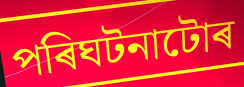
পৰিঘটনাটোৰ